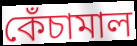
কেঁচামাল